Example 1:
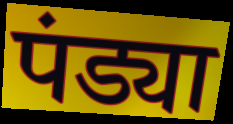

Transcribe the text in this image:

पंड्या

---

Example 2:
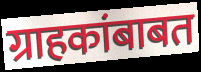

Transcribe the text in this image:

ग्राहकांबाबत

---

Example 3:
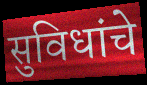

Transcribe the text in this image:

सुविधांचे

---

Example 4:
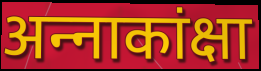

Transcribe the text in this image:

अन्नाकांक्षा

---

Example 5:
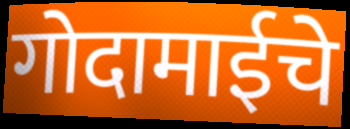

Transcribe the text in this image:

गोदामाईचे